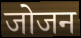
जोजन